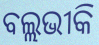
ବଲ୍ଲଭୀକି